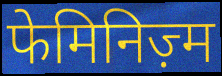
फेमिनिज़्म